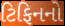
ટિફિનનો